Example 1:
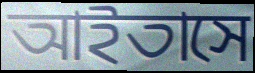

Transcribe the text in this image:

আইতাসে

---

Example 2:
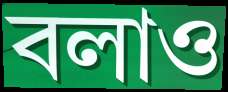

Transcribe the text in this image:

বলাও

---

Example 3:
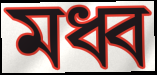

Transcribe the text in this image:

মধ্ব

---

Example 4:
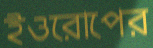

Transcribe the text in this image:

ইওরোপের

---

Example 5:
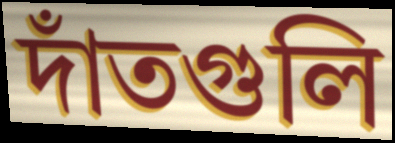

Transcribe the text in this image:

দাঁতগুলি